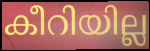
കീറിയില്ല